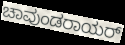
ಚಾವುಂಡರಾಯರ್